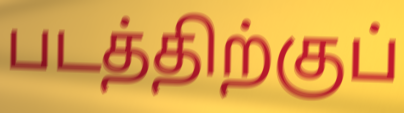
படத்திற்குப்